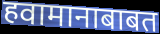
हवामानाबाबत